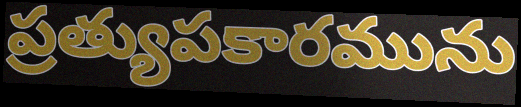
ప్రత్యుపకారమును